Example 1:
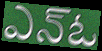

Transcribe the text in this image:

ఎన్ఓ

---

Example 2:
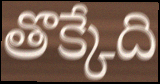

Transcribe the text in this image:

తొక్కేది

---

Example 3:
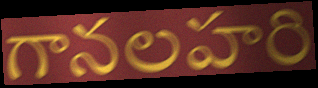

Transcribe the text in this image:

గానలహరి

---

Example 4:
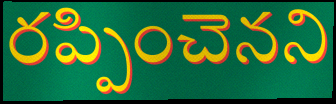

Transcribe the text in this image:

రప్పించెనని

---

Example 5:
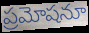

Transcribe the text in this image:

ప్రమోషనూ